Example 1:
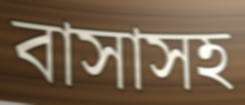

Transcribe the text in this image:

বাসাসহ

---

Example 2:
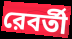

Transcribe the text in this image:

রেবর্তী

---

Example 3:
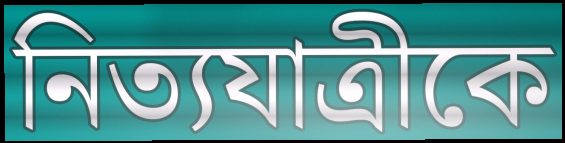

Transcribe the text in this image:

নিত্যযাত্রীকে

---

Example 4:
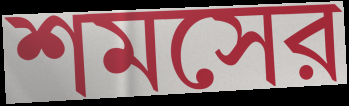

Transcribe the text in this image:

শমসের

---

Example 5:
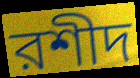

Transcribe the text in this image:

রশীদ